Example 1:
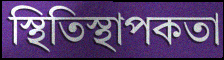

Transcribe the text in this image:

স্থিতিস্থাপকতা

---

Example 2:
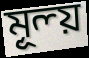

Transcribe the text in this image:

মূল্য়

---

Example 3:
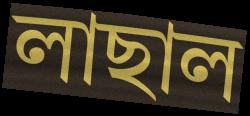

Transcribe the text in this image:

লাছাল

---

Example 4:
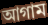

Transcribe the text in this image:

আগাম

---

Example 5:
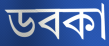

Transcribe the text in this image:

ডবকা